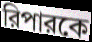
রিপারকে